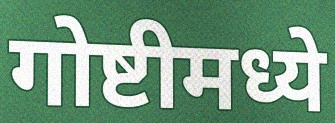
गोष्टीमध्ये